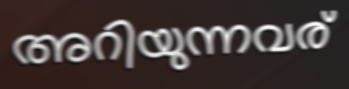
അറിയുന്നവര്